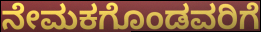
ನೇಮಕಗೊಂಡವರಿಗೆ